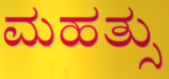
ಮಹತ್ಸು